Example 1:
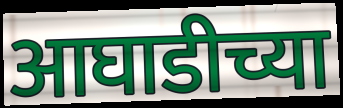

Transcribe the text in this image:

आघाडीच्या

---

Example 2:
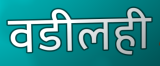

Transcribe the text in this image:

वडीलही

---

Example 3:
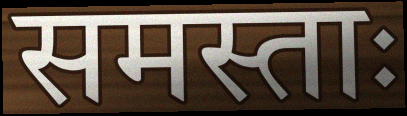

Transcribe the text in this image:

समस्ताः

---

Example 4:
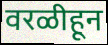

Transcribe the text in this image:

वरळीहून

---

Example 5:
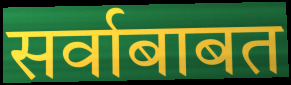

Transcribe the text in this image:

सर्वाबाबत